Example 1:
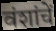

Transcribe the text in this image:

वंशांचें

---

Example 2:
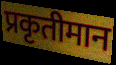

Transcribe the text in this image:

प्रकृतीमान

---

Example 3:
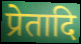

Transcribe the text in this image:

प्रेतादि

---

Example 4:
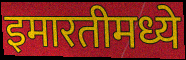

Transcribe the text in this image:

इमारतीमध्ये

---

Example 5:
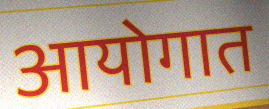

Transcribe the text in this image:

आयोगात